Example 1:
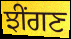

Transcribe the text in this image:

ਝੀਂਗਣ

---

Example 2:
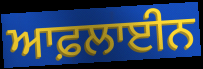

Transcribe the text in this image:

ਆਫ਼ਲਾਈਨ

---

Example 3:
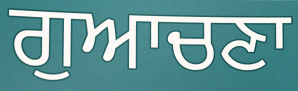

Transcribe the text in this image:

ਗੁਆਚਣਾ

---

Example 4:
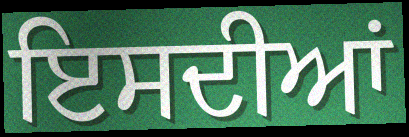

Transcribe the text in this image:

ਇਸਦੀਆਂ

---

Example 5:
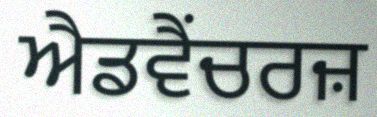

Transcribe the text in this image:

ਐਡਵੈਂਚਰਜ਼